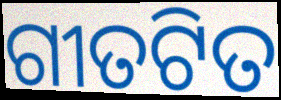
ଗୀତଟିତ